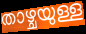
താഴ്ചയുള്ള